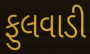
ફુલવાડી